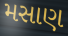
મસાણ